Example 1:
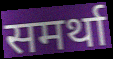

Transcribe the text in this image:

समर्था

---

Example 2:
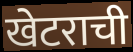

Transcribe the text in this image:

खेटराची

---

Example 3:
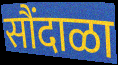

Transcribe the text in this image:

सौंदाळा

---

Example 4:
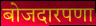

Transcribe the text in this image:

बोजदारपणा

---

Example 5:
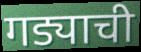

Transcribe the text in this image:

गड्याची